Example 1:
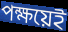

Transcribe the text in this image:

পক্ষয়েই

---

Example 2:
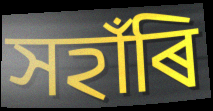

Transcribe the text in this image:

সহাঁৰি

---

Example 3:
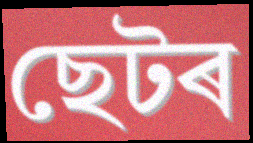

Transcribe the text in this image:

ছেটৰ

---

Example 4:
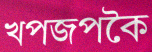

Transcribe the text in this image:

খপজপকৈ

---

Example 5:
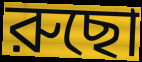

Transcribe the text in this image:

ৰুছো